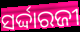
ସର୍ଦ୍ଦାରଜୀ